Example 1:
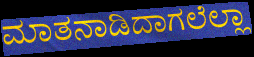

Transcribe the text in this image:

ಮಾತನಾಡಿದಾಗಲೆಲ್ಲಾ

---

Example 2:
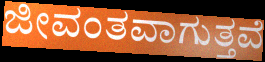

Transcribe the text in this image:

ಜೀವಂತವಾಗುತ್ತವೆ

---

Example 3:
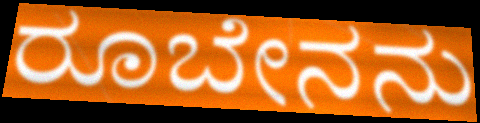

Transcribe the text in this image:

ರೂಬೇನನು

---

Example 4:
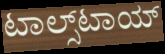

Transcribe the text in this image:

ಟಾಲ್ಸ್‌ಟಾಯ್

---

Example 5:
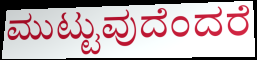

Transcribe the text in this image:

ಮುಟ್ಟುವುದೆಂದರೆ